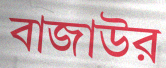
বাজাউর